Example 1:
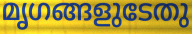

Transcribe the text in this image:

മൃഗങ്ങളുടേതു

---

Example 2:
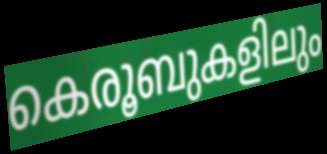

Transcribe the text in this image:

കെരൂബുകളിലും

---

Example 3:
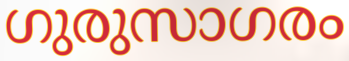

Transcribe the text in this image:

ഗുരുസാഗരം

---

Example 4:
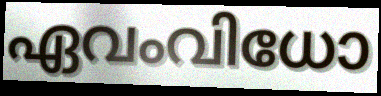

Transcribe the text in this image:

ഏവംവിധോ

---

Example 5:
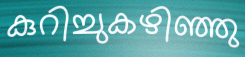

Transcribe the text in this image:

കുറിച്ചുകഴിഞ്ഞു